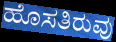
ಹೊಸತಿರುವು